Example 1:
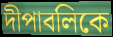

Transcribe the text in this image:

দীপাবলিকে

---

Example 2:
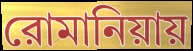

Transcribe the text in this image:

রোমানিয়ায়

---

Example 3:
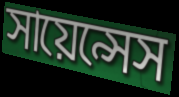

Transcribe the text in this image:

সায়েন্সেস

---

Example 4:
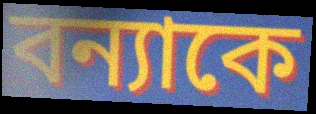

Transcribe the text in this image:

বন্যাকে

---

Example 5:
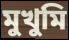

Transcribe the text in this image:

মুখুমি